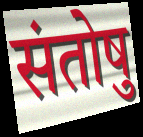
संतोषु